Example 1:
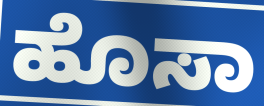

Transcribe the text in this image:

ಹೊಸಾ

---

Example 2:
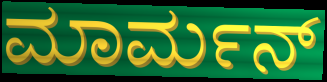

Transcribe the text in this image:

ಮಾರ್ಮನ್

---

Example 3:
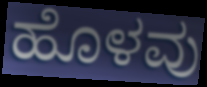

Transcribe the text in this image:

ಹೊಳವು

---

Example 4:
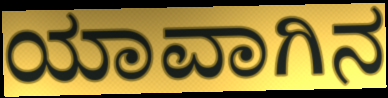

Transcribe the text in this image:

ಯಾವಾಗಿನ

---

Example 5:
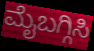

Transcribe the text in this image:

ಮೈಬಗ್ಗಿಸಿ